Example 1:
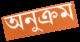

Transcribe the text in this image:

অনুক্ৰম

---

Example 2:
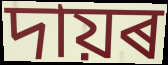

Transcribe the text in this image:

দায়ৰ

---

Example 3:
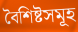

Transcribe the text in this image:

বৈশিষ্টসমূহ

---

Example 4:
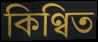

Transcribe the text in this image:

কিণ্বিত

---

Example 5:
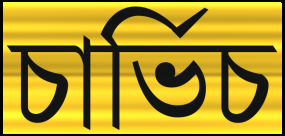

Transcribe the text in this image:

চাৰ্ভিচ